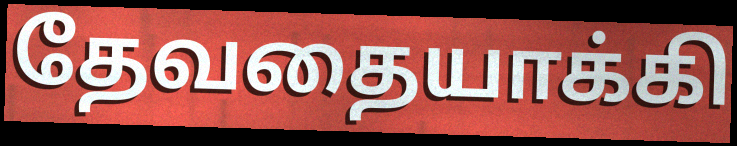
தேவதையாக்கி